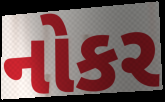
નોકર